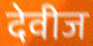
देवीज